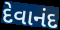
દેવાનંદ